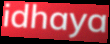
idhaya